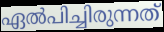
ഏൽപിച്ചിരുന്നത്